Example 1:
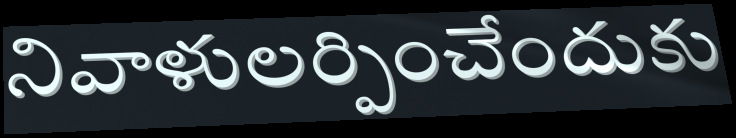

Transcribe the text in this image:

నివాళులర్పించేందుకు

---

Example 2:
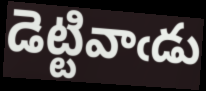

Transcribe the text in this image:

డెట్టివాఁడు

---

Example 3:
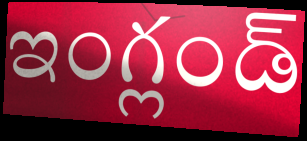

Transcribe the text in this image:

ఇంగ్లండ్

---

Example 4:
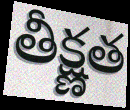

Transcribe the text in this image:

తీక్ష్ణత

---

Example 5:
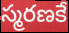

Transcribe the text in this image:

స్మరణకే